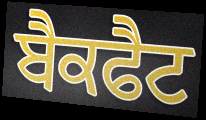
ਬੈਕਫੈਟ